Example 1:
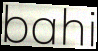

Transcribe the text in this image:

bahi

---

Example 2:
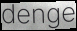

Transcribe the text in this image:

denge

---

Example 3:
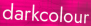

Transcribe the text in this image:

darkcolour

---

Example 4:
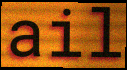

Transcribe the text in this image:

ail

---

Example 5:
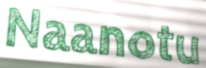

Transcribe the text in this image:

Naanotu